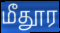
மீதூர